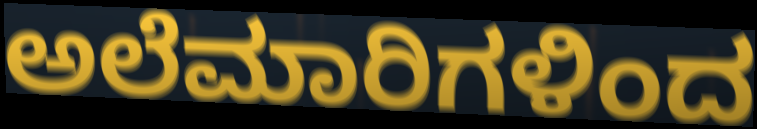
ಅಲೆಮಾರಿಗಳಿಂದ